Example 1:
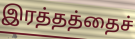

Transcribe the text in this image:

இரத்தத்தைச்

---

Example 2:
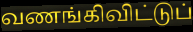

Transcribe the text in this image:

வணங்கிவிட்டுப்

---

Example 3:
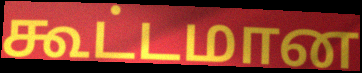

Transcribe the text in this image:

கூட்டமான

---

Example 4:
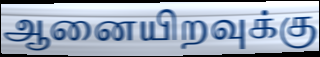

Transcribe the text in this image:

ஆனையிறவுக்கு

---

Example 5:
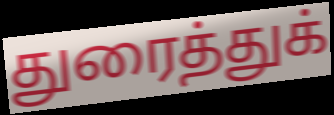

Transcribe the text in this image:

துரைத்துக்